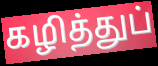
கழித்துப்